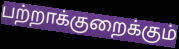
பற்றாக்குறைக்கும்